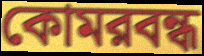
কোমরবন্ধ